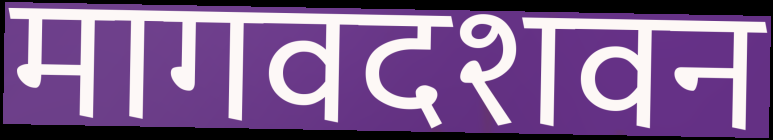
मागवदशवन